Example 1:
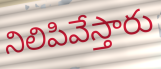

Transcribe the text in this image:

నిలిపివేస్తారు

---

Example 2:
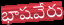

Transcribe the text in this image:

భాషవేరు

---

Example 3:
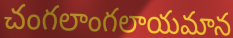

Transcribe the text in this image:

చంగలాంగలాయమాన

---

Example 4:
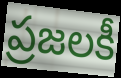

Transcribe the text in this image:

ప్రజలకీ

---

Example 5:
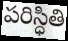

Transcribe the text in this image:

పరిస్ధితి